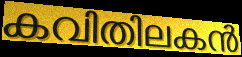
കവിതിലകൻ